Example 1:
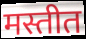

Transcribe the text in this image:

मस्तीत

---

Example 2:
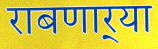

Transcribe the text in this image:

राबणार्या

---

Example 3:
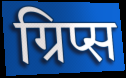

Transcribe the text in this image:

ग्रिप्स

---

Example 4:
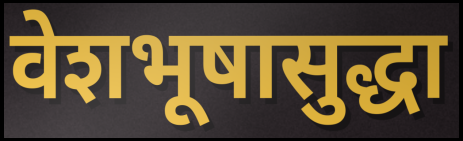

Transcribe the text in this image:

वेशभूषासुद्धा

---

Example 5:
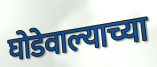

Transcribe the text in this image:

घोडेवाल्याच्या